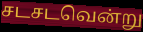
சடசடவென்று